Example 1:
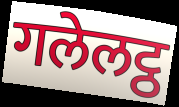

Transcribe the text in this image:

गलेलट्ठ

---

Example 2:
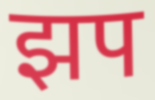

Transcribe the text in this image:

झप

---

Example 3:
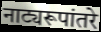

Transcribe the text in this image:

नाट्यरूपांतरे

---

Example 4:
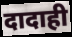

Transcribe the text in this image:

दादाही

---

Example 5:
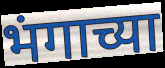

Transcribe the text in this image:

भंगाच्या